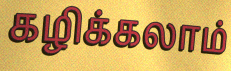
கழிக்கலாம்